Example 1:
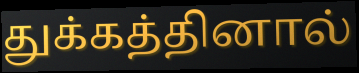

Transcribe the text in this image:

துக்கத்தினால்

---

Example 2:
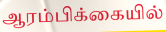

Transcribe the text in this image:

ஆரம்பிக்கையில்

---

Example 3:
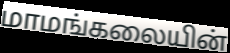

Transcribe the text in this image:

மாமங்கலையின்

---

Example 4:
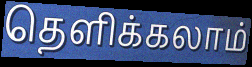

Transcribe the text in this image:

தெளிக்கலாம்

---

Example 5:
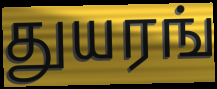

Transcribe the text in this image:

துயரங்